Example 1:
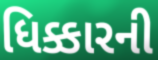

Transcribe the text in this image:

ધિક્કારની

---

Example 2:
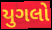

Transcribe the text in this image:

યુગલો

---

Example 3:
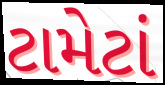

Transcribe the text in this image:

ટામેટાં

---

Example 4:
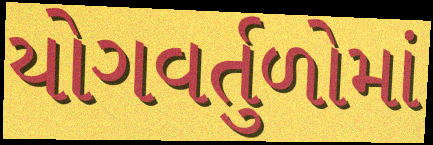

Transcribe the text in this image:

યોગવર્તુળોમાં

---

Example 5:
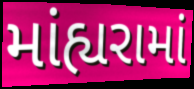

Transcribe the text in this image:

માંહ્યરામાં